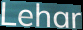
Lehar